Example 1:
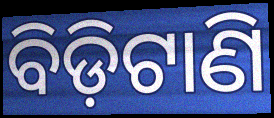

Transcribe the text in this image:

ବିଡ଼ିଟାଣି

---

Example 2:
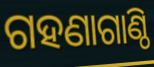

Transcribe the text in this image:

ଗହଣାଗାଣ୍ଠି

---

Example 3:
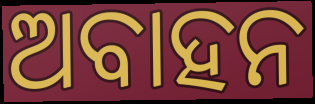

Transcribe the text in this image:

ଅବାହନ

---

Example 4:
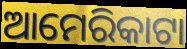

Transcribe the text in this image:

ଆମେରିକାଟା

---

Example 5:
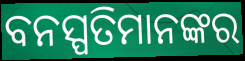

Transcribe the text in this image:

ବନସ୍ପତିମାନଙ୍କର